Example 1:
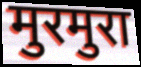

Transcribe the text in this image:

मुरमुरा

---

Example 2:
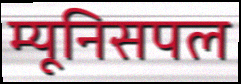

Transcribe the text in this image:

म्यूनिसपल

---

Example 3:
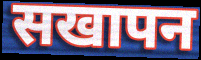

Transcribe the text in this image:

सखापन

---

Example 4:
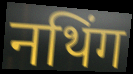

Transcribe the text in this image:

नथिंग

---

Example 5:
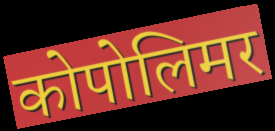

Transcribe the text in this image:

कोपोलिमर